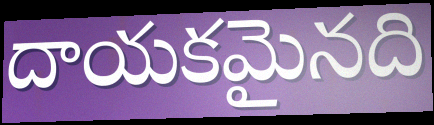
దాయకమైనది